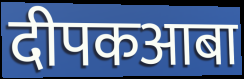
दीपकआबा